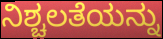
ನಿಶ್ಚಲತೆಯನ್ನು